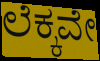
ಲೆಕ್ಕವೇ